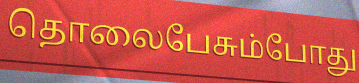
தொலைபேசும்போது